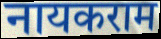
नायकराम